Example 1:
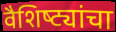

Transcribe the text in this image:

वैशिष्ट्यांचा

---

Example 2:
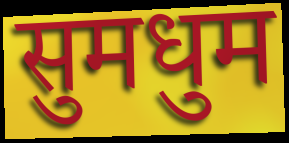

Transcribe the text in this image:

सुमधुम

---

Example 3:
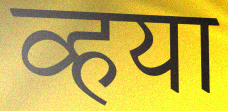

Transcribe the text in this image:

व्हया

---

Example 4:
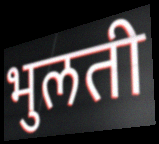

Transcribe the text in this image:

भुलती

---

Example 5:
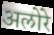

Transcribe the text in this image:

अलोरे